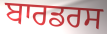
ਬਾਰਡਰਸ